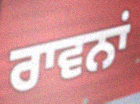
ਰਾਵਨਾਂ